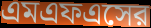
এমএফএসের